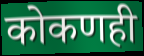
कोकणही